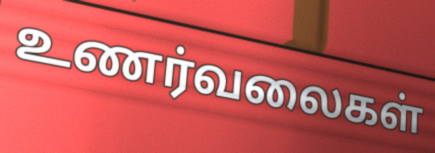
உணர்வலைகள்